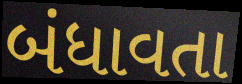
બંધાવતા